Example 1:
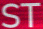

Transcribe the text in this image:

ST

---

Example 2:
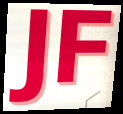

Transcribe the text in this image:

JF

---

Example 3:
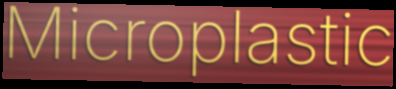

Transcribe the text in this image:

Microplastic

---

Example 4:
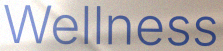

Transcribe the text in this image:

Wellness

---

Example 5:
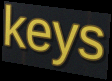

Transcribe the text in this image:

keys